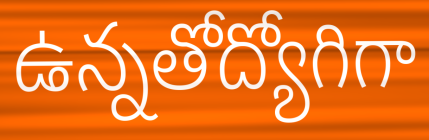
ఉన్నతోద్యోగిగా